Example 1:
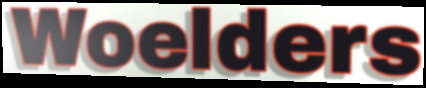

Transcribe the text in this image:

Woelders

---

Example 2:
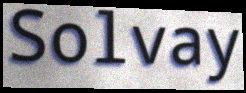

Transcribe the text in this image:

Solvay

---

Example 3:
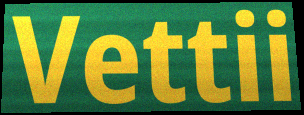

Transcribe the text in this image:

Vettii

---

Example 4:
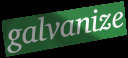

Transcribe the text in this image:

galvanize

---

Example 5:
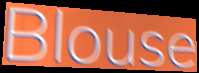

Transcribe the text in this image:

Blouse